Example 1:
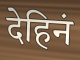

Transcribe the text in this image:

देहिनं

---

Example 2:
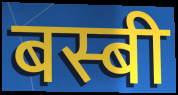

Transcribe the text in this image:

बस्बी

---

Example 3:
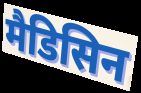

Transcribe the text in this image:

मैडिसिन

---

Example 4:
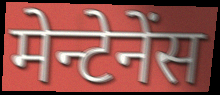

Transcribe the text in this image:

मेन्टेनेंस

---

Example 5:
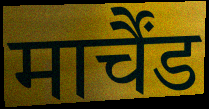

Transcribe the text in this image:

मार्चैंड